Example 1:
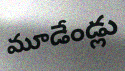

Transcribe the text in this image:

మూడేండ్లు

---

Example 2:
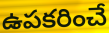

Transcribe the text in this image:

ఉపకరించే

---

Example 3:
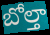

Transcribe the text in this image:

బోల్తా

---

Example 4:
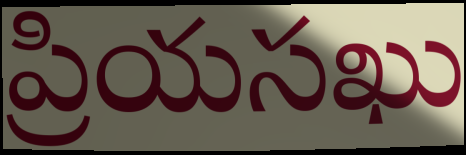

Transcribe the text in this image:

ప్రియసఖు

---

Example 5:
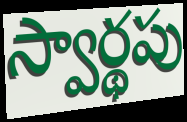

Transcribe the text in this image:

స్వార్థపు